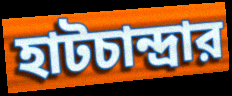
হাটচান্দ্রার